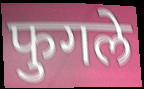
फुगले